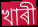
খাৰী